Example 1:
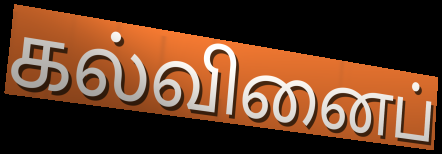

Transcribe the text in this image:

கல்வினைப்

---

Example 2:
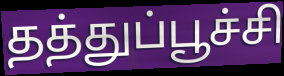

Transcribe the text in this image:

தத்துப்பூச்சி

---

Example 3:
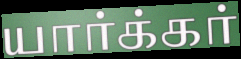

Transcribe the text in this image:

யார்க்கர்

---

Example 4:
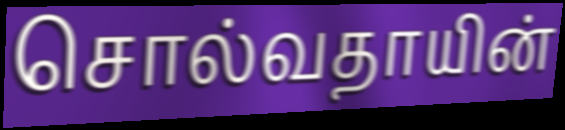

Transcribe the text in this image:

சொல்வதாயின்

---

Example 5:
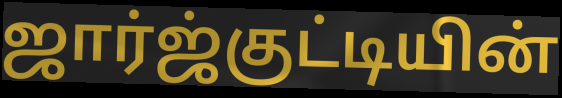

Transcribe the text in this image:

ஜார்ஜ்குட்டியின்